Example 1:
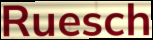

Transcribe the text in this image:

Ruesch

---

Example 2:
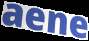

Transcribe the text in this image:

aene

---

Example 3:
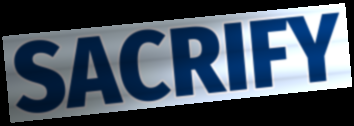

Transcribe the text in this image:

SACRIFY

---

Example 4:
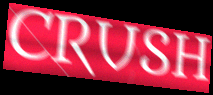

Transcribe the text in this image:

CRUSH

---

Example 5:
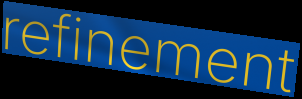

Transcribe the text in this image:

refinement